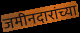
जमीनदारांच्या